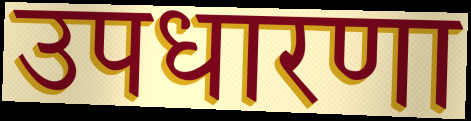
उपधारणा